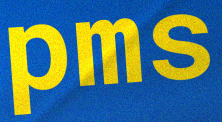
pms